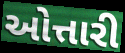
ઓત્તારી